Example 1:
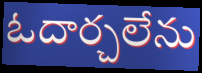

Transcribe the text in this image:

ఓదార్చలేను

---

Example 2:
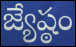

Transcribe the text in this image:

జ్యేష్ఠం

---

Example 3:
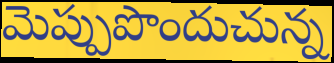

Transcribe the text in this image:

మెప్పుపొందుచున్న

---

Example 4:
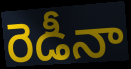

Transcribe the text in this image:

రెడీనా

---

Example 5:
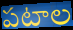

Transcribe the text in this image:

పటాల